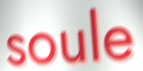
soule